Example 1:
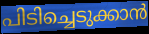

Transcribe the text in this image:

പിടിച്ചെടുക്കാൻ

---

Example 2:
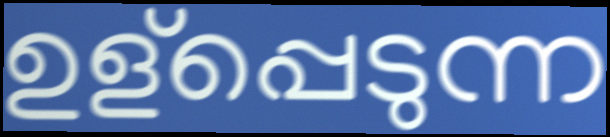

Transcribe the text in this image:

ഉള്പ്പെടുന്ന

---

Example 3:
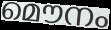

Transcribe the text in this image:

മൌനം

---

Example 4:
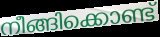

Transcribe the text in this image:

നീങ്ങിക്കൊണ്ട്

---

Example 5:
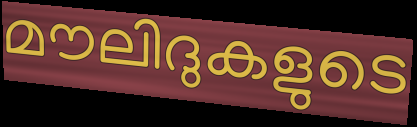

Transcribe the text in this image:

മൗലിദുകളുടെ